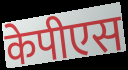
केपीएस